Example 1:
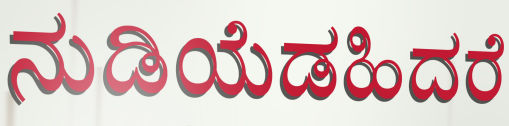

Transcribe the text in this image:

ನುಡಿಯೆಡಹಿದರೆ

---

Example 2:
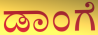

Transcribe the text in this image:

ಡಾಂಗೆ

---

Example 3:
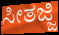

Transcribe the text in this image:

ಸೀತಜ್ಜಿ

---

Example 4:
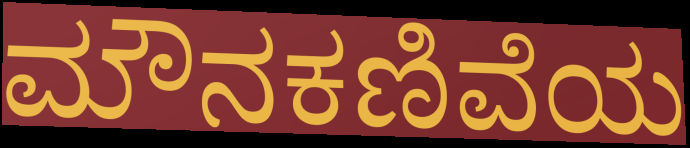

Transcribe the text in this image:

ಮೌನಕಣಿವೆಯ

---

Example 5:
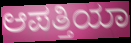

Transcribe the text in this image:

ಆಪತ್ತಿಯಾ